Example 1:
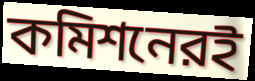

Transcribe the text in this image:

কমিশনেরই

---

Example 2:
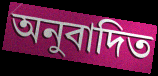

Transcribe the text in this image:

অনুবাদিত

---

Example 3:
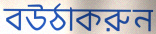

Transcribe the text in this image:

বউঠাকরুন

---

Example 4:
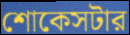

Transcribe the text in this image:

শোকেসটার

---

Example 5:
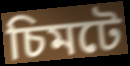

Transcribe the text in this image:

চিমটে